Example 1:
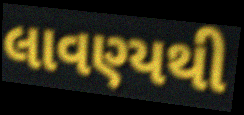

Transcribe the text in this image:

લાવણ્યથી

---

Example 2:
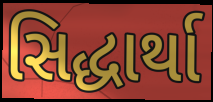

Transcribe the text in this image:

સિદ્ધાર્થા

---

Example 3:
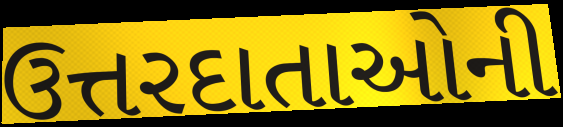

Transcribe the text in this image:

ઉત્તરદાતાઓની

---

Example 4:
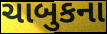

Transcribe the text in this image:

ચાબુકના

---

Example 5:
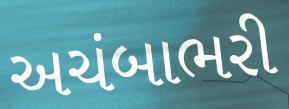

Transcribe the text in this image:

અચંબાભરી